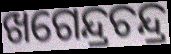
ଖଗେନ୍ଦ୍ରଚନ୍ଦ୍ର